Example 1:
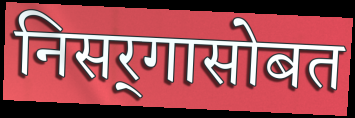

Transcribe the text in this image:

निसर्गासोबत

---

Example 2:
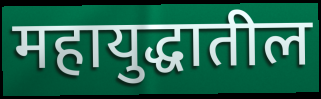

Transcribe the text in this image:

महायुद्धातील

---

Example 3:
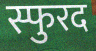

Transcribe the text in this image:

स्फुरद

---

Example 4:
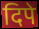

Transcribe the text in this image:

दिपे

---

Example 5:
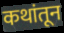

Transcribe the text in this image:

कथांतून